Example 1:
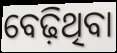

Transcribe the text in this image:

ବେଢ଼ିଥିବା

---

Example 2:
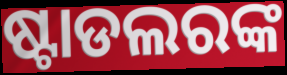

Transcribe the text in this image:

ଷ୍ଟାଡଲରଙ୍କ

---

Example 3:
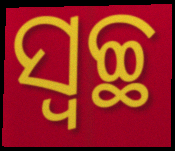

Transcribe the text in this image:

ସ୍ଵଚ୍ଛ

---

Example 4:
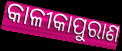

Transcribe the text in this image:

କାଳୀକାପୁରାଣ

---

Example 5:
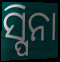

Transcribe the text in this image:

ସ୍ପିନା